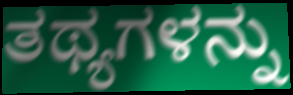
ತಥ್ಯಗಳನ್ನು